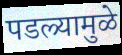
पडल्यामुळे